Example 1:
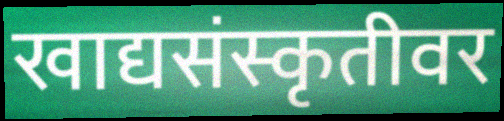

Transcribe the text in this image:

खाद्यसंस्कृतीवर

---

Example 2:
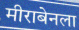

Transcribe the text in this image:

मीराबेनला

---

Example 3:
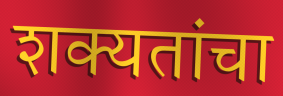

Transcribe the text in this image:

शक्यतांचा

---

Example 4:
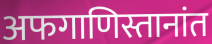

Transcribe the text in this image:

अफगाणिस्तानांत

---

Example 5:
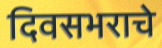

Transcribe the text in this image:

दिवसभराचे